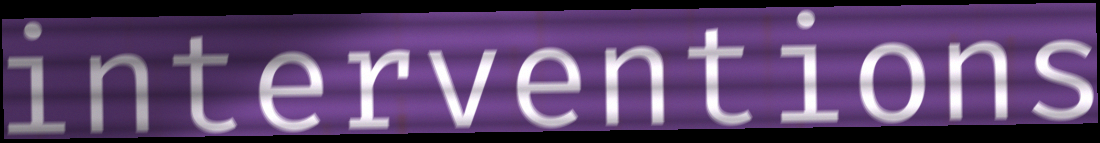
interventions